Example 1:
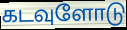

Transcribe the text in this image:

கடவுளோடு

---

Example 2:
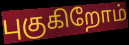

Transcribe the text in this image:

புகுகிறோம்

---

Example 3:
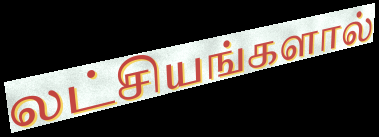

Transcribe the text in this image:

லட்சியங்களால்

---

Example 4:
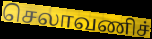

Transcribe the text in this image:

செலாவணிச்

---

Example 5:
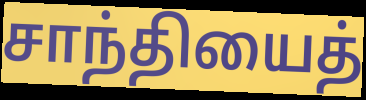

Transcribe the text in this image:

சாந்தியைத்